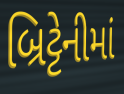
બ્રિટ્ટેનીમાં